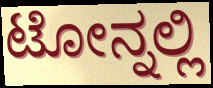
ಟೋನ್ನಲ್ಲಿ